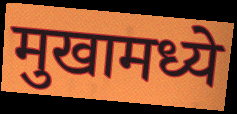
मुखामध्ये